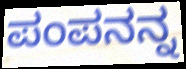
ಪಂಪನನ್ನ